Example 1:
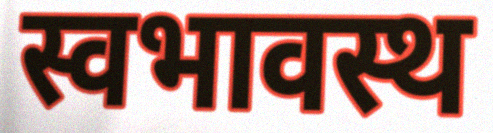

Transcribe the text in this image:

स्वभावस्थ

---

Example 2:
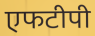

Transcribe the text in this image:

एफटीपी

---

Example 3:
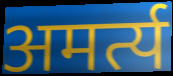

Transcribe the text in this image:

अमर्त्य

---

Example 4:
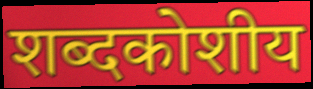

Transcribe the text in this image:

शब्दकोशीय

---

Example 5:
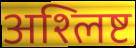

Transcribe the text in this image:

अश्लिष्ट